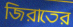
জিরাতের